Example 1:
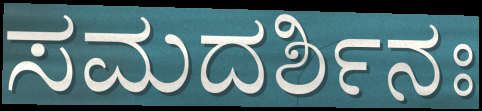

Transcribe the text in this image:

ಸಮದರ್ಶಿನಃ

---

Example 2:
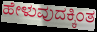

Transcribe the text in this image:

ಹೇಳುವುದಕ್ಕಿಂತ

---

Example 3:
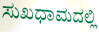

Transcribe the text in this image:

ಸುಖಧಾಮದಲ್ಲಿ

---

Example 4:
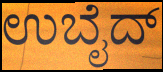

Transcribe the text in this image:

ಉಬೈದ್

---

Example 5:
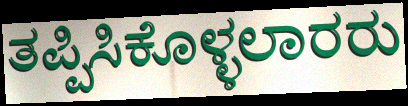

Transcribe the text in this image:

ತಪ್ಪಿಸಿಕೊಳ್ಳಲಾರರು